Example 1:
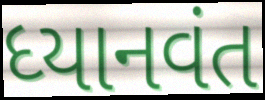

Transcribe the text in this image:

ધ્યાનવંત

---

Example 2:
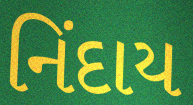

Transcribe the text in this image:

નિંદાય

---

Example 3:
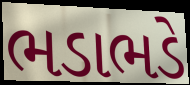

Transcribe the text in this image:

ભડાભડે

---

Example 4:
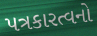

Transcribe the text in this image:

પત્રકારત્વનો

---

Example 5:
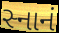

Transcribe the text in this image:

સ્નાનં